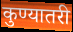
कुण्यातरी